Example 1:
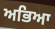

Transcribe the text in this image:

ਅਭਿਆ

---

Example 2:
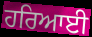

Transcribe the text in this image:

ਹਰਿਆਈ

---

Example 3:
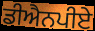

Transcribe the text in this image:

ਡੀਐਨਪੀਏ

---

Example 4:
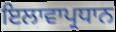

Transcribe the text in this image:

ਇਲਾਵਾਪ੍ਰਧਾਨ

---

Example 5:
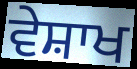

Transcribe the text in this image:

ਵੇਸ਼ਾਖ